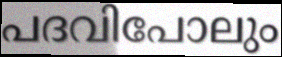
പദവിപോലും